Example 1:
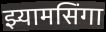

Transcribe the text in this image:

झ्यामसिंगा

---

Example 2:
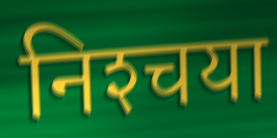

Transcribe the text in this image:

निश्चया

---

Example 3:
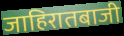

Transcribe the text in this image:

जाहिरातबाजी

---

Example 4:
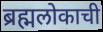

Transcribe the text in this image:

ब्रह्मलोकाची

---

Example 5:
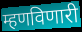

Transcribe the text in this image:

म्हणविणारी